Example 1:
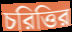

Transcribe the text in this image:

চরিত্তির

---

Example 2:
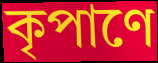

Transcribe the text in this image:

কৃপাণে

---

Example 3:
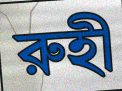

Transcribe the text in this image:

রুহী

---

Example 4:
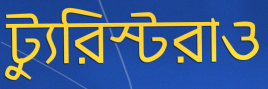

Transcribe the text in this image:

ট্যুরিস্টরাও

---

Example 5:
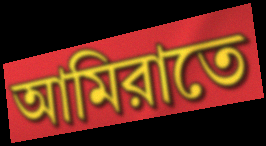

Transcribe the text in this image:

আমিরাতে